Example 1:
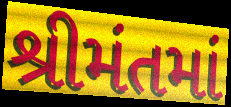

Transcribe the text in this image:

શ્રીમંતમાં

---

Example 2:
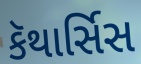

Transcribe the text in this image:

કૅથાર્સિસ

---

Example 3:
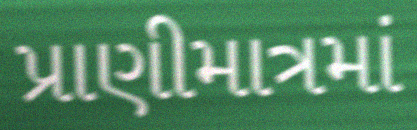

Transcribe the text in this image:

પ્રાણીમાત્રમાં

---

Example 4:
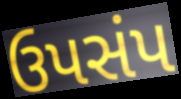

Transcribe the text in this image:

ઉપસંપ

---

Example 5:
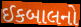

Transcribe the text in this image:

ઈકબાલનો